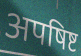
अपषिष्ट